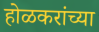
होळकरांच्या